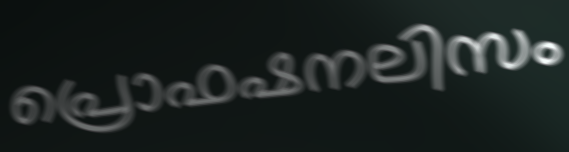
പ്രൊഫഷനലിസം